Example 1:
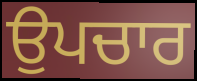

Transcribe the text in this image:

ਉਪਚਾਰ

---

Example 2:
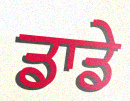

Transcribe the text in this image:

ਡਾਡੇ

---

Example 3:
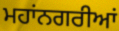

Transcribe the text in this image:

ਮਹਾਂਨਗਰੀਆਂ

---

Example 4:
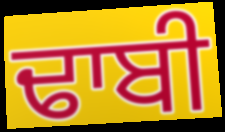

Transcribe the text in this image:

ਢਾਬੀ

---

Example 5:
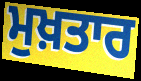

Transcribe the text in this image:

ਮੁਖ਼ਤਾਰ